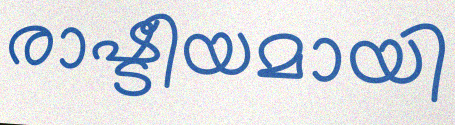
രാഷ്ടീയമായി